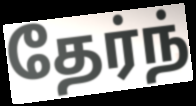
தேர்ந்